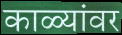
काळ्यांवर